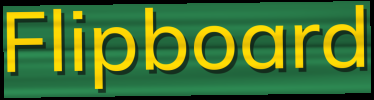
Flipboard